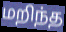
மறிந்த